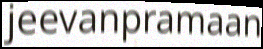
jeevanpramaan